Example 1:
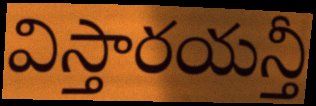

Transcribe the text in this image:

విస్తారయన్తీ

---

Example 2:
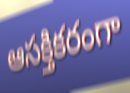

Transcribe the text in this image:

ఆసక్తికరంగా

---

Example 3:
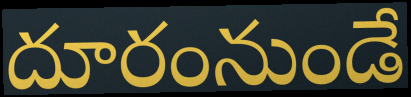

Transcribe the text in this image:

దూరంనుండే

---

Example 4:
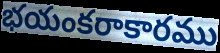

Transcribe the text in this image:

భయంకరాకారము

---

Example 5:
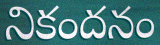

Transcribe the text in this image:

నికందనం